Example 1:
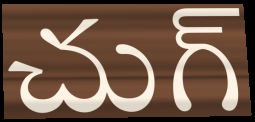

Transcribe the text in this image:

చుగ్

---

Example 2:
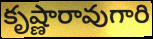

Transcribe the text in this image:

కృష్ణారావుగారి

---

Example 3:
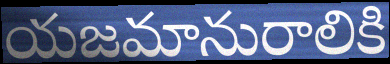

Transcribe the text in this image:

యజమానురాలికి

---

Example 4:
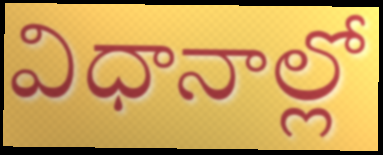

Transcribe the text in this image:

విధానాల్లో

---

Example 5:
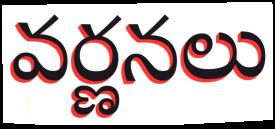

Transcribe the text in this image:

వర్ణనలు